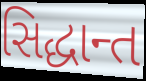
સિદ્ધાન્ત